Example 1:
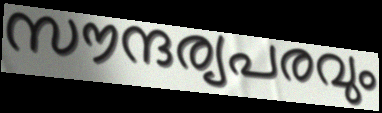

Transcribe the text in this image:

സൗന്ദര്യപരവും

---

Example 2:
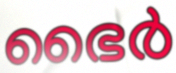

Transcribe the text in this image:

ഭൈർ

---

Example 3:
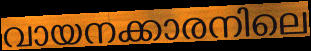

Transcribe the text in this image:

വായനക്കാരനിലെ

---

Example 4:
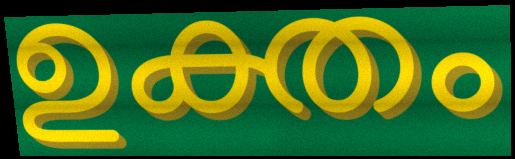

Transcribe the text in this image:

ഉക്തം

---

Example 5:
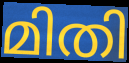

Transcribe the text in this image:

മിതി